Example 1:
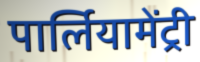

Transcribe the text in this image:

पार्लियामेंट्री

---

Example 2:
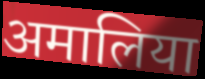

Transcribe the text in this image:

अमालिया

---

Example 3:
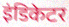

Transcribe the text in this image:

इंडिकेटर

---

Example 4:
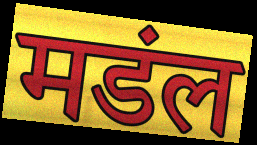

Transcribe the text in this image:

मडंल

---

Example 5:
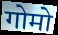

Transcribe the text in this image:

गोमो